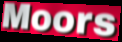
Moors